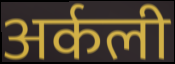
अर्कली